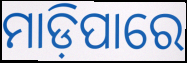
ମାଡ଼ିପାରେ